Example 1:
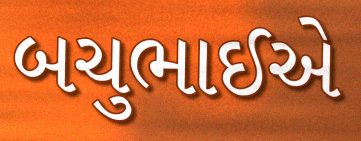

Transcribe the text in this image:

બચુભાઈએ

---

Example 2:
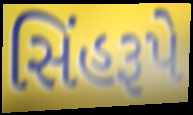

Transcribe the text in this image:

સિંહરૂપે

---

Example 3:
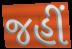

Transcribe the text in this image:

જહીં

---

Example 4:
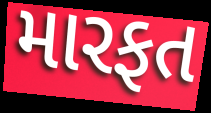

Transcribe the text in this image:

મારફત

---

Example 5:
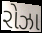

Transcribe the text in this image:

રોઝા